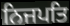
ਨਿਜਪਤਿ